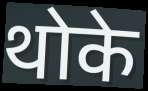
थोके